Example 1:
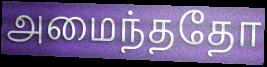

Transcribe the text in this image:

அமைந்ததோ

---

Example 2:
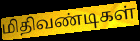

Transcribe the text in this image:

மிதிவண்டிகள்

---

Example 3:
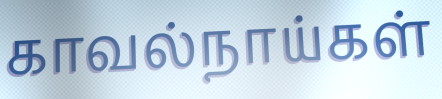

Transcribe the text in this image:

காவல்நாய்கள்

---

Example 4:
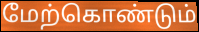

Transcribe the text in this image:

மேற்கொண்டும்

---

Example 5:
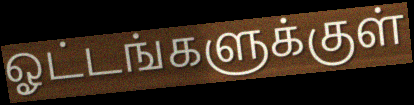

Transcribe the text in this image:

ஓட்டங்களுக்குள்